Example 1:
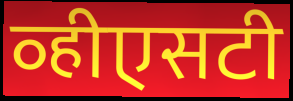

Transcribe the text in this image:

व्हीएसटी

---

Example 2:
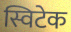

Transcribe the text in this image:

स्विटेक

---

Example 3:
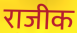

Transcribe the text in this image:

राजीक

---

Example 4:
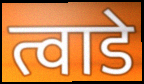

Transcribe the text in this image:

त्वाडे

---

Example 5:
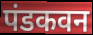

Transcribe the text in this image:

पंडकवन